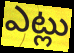
ఎట్లు